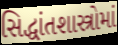
સિદ્ધાંતશાસ્ત્રોમાં